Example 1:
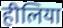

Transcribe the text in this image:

हीलिया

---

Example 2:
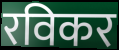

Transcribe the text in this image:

रविकर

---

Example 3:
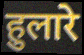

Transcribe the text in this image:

हुलारे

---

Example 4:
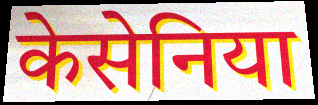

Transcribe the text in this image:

केसेनिया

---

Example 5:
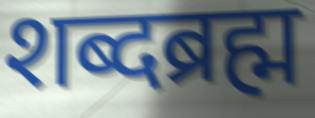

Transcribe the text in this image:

शब्दब्रह्म